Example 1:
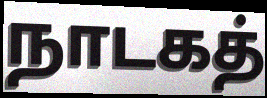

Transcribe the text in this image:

நாடகத்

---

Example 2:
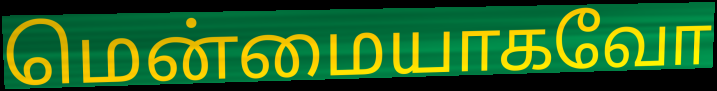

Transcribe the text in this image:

மென்மையாகவோ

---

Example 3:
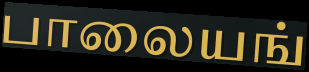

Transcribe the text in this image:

பாலையங்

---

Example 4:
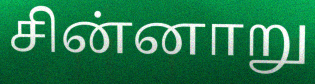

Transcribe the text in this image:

சின்னாறு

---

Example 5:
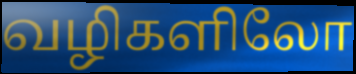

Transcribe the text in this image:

வழிகளிலோ